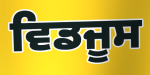
ਵਿਡਜੂਸ